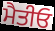
ਮੈਤੀਓ